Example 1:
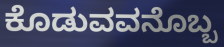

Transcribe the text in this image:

ಕೊಡುವವನೊಬ್ಬ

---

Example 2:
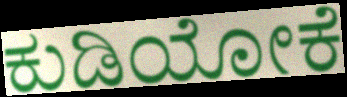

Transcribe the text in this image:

ಕುಡಿಯೋಕೆ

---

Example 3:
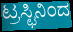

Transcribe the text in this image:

ಟ್ರಸ್ಟಿನಿಂದ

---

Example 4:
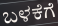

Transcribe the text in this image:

ಬಳಕೆಗೆ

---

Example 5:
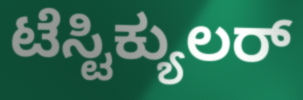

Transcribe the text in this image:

ಟೆಸ್ಟಿಕ್ಯುಲರ್